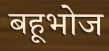
बहूभोज